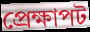
প্ৰেক্ষাপট